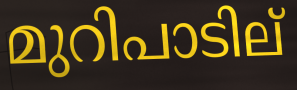
മുറിപാടില്